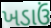
ખડાઉં